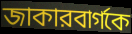
জাকারবার্গকে